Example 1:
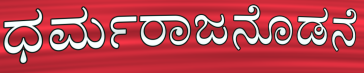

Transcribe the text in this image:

ಧರ್ಮರಾಜನೊಡನೆ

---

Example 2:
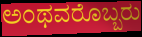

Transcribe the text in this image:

ಅಂಥವರೊಬ್ಬರು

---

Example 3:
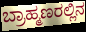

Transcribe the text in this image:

ಬ್ರಾಹ್ಮಣರಲ್ಲಿನ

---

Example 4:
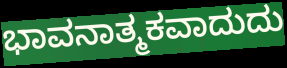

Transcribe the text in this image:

ಭಾವನಾತ್ಮಕವಾದುದು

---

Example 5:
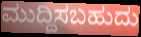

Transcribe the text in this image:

ಮುದ್ದಿಸಬಹುದು